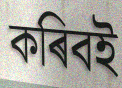
কৰিবই